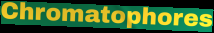
Chromatophores